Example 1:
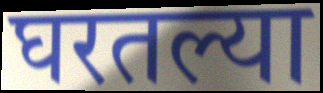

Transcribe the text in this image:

घरतल्या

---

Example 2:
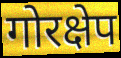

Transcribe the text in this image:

गोरक्षेप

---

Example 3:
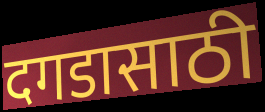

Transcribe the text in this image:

दगडासाठी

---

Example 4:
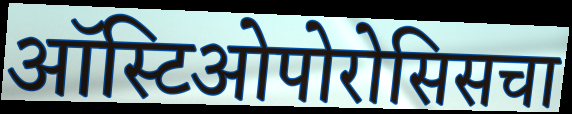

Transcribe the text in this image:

ऑस्टिओपोरोसिसचा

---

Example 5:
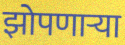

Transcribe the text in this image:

झोपणार्‍या